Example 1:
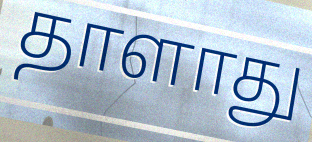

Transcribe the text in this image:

தாளாது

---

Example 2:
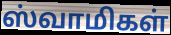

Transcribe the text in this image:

ஸ்வாமிகள்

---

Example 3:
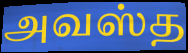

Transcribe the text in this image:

அவஸ்த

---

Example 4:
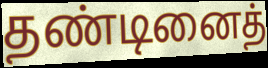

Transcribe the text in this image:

தண்டினைத்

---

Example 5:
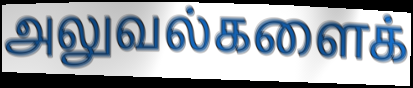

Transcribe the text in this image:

அலுவல்களைக்